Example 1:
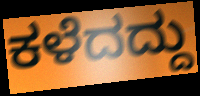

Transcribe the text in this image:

ಕಳೆದದ್ದು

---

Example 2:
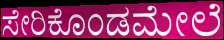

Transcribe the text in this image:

ಸೇರಿಕೊಂಡಮೇಲೆ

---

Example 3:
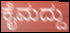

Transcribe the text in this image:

ಕೈಮದ್ದು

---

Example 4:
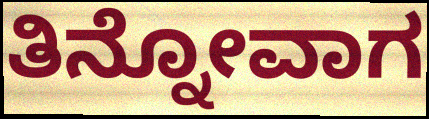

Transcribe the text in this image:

ತಿನ್ನೋವಾಗ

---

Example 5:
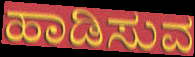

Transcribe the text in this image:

ಹಾಡಿಸುವ